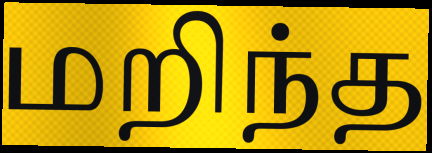
மறிந்த